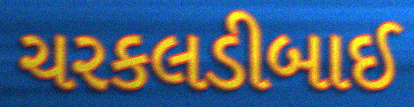
ચરકલડીબાઈ